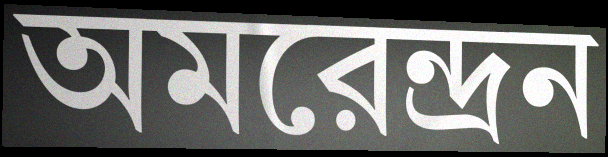
অমরেন্দ্রন